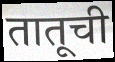
तातूची